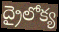
ద్రైలోక్య